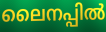
ലൈനപ്പിൽ